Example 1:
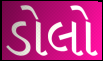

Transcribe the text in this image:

ડોલો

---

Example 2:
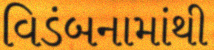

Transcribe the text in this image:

વિડંબનામાંથી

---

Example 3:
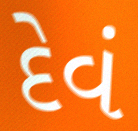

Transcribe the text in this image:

દેવં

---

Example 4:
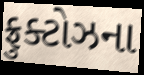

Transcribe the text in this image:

ફ્રુક્ટોઝના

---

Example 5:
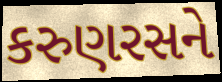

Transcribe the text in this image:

કરુણરસને